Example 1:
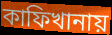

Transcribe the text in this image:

কাফিখানায়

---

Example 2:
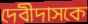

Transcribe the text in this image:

দেবীদাসকে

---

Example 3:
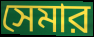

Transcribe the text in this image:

সেমার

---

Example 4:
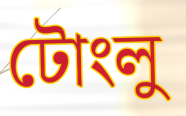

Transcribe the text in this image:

টোংলু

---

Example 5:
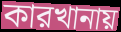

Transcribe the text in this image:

কারখানায়